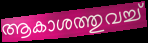
ആകാശത്തുവച്ച്